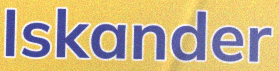
Iskander